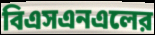
বিএসএনএলের